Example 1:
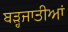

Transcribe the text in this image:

ਬੜ੍ਹਜਾਤੀਆਂ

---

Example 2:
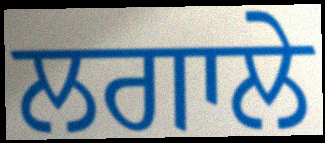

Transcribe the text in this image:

ਲਗਾਲੇ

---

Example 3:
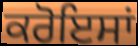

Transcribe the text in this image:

ਕਰੋਇਸਾਂ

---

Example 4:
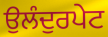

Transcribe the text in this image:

ਉਲੰਦੁਰਪੇਟ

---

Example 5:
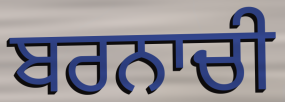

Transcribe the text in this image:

ਬਰਨਾਚੀ